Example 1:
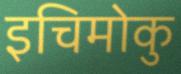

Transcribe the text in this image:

इचिमोकु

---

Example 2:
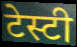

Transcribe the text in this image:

टेस्टी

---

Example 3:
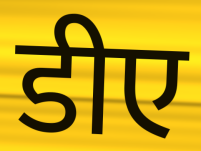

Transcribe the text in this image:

डीए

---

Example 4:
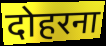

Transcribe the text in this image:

दोहरना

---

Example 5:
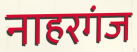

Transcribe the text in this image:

नाहरगंज